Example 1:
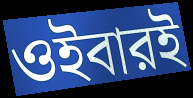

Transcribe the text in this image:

ওইবারই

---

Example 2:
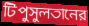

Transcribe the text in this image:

টিপুসুলতানের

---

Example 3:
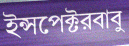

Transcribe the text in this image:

ইন্সপেক্টরবাবু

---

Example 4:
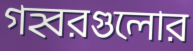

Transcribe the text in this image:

গহ্বরগুলোর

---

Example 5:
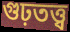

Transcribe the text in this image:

গুঢ়তত্ত্ব